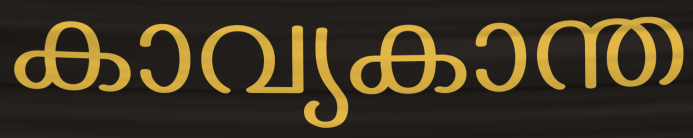
കാവ്യകാന്ത